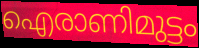
ഐരാണിമുട്ടം